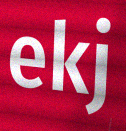
ekj